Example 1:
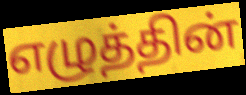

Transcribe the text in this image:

எழுத்தின்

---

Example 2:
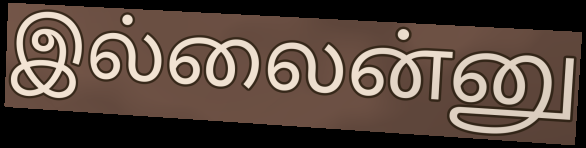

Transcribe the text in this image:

இல்லைன்னு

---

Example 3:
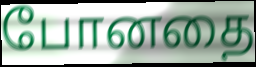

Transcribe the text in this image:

போனதை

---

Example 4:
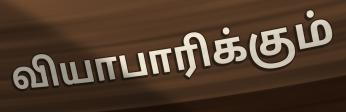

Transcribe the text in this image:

வியாபாரிக்கும்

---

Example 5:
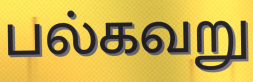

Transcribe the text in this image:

பல்கவறு